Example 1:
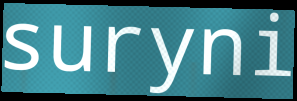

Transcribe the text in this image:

suryni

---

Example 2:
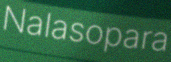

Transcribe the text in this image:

Nalasopara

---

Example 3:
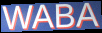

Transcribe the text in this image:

WABA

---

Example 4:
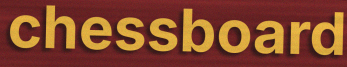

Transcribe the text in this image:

chessboard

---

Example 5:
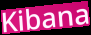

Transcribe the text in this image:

Kibana